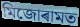
মিজোৰামত